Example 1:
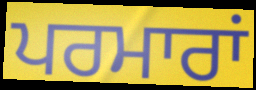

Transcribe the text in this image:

ਪਰਮਾਰਾਂ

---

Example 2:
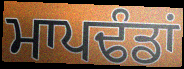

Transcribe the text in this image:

ਮਾਪਢੰਡਾਂ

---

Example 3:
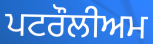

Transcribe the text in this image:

ਪਟਰੌਲੀਅਮ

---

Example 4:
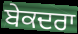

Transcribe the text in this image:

ਬੇਕਦਰਾ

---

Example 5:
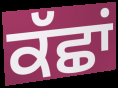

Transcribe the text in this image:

ਕੱਛਾਂ